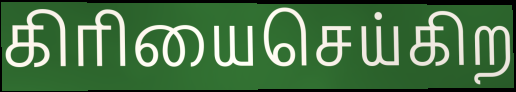
கிரியைசெய்கிற